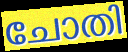
ചോതി